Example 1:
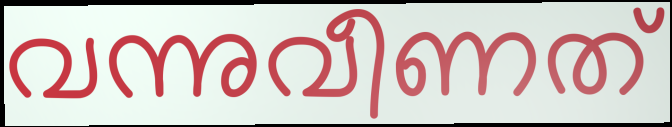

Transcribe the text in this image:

വന്നുവീണത്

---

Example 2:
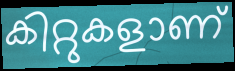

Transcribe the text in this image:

കിറ്റുകളാണ്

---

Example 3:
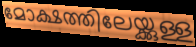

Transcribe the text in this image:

മോക്ഷത്തിലേയ്ക്കുള്ള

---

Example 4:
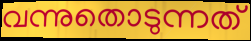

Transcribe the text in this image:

വന്നുതൊടുന്നത്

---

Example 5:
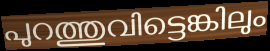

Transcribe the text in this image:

പുറത്തുവിട്ടെങ്കിലും